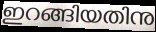
ഇറങ്ങിയതിനു